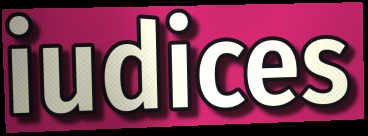
iudices